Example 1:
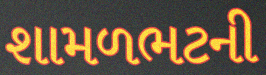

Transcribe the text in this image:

શામળભટની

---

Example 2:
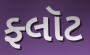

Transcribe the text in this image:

ફ્લૉટ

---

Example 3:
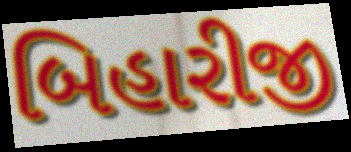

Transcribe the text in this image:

બિહારીજી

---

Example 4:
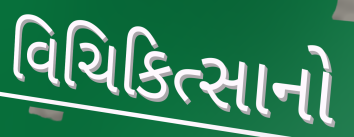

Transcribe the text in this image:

વિચિકિત્સાનો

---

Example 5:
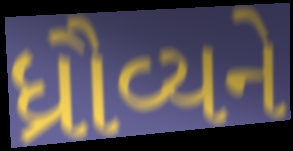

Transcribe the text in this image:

ધ્રૌવ્યને